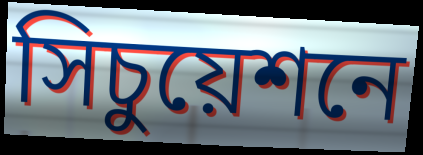
সিচুয়েশনে